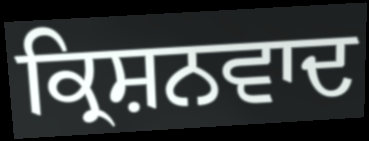
ਕ੍ਰਿਸ਼ਨਵਾਦ